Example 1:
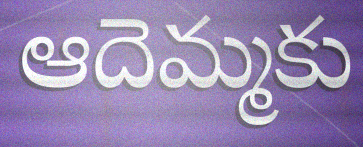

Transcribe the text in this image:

ఆదెమ్మకు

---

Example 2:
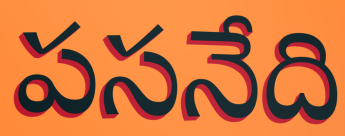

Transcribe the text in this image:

పసనేది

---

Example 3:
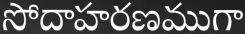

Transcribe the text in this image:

సోదాహరణముగా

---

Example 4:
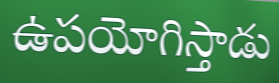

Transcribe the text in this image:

ఉపయోగిస్తాడు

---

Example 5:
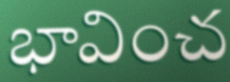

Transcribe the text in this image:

భావించ